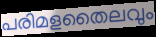
പരിമളതൈലവും